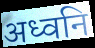
अध्वनि